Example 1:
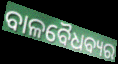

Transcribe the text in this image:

ବାଳବୈଧବ୍ୟର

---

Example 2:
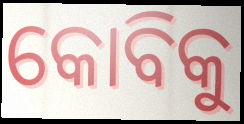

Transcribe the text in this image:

କୋବିକୁ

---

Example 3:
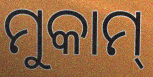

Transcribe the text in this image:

ମୁକାମ୍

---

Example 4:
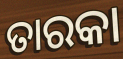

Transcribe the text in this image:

ତାରକା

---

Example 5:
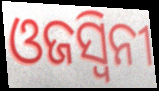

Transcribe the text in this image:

ଓଜସ୍ଵିନୀ